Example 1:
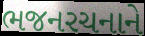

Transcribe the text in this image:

ભજનરચનાને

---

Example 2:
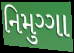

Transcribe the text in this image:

નિમુગ્ગા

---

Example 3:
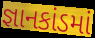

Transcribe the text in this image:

જ્ઞાનકાંડમાં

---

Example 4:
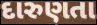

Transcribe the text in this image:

દારુણતા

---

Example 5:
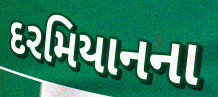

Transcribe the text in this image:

દરમિયાનના